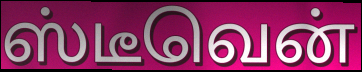
ஸ்டீவென்